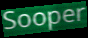
Sooper